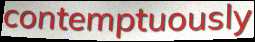
contemptuously